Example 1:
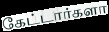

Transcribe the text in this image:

கேட்டார்களா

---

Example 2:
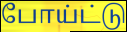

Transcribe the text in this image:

போய்ட்டு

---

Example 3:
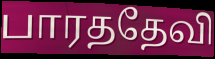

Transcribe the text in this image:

பாரததேவி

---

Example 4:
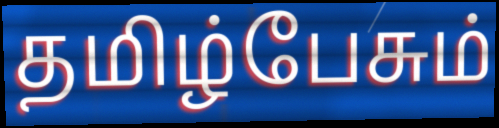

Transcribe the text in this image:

தமிழ்பேசும்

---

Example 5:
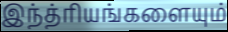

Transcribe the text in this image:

இந்த்ரியங்களையும்